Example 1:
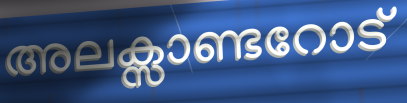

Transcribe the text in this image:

അലക്സാണ്ടറോട്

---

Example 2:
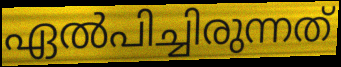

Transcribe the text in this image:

ഏൽപിച്ചിരുന്നത്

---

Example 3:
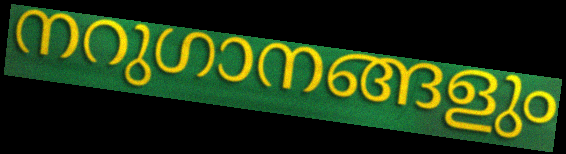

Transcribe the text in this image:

നറുഗാനങ്ങളും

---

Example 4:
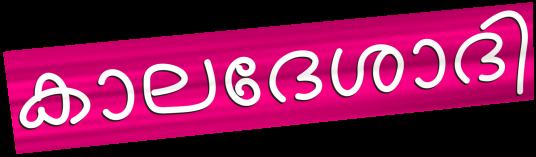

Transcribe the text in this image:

കാലദേശാദി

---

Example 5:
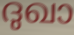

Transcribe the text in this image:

ദുഖാ